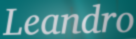
Leandro